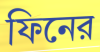
ফিনের